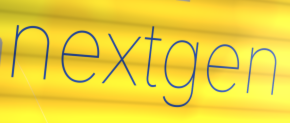
nextgen